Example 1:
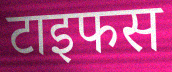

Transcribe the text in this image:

टाइफस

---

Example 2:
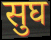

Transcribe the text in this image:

सुघ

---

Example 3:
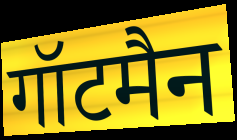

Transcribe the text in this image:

गॉटमैन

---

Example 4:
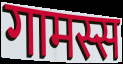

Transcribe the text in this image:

गामस्स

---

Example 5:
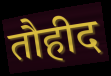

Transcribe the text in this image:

तौहीद